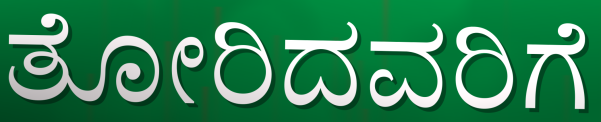
ತೋರಿದವರಿಗೆ